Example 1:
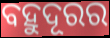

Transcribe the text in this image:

ବହୁଦୂରର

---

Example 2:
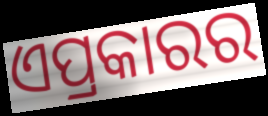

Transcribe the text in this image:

ଏପ୍ରକାରର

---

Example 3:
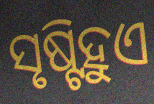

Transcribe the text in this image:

ସୃଷ୍ଟିହୁଏ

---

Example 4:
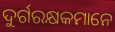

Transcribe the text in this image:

ଦୁର୍ଗରକ୍ଷକମାନେ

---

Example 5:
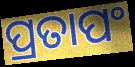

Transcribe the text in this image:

ପ୍ରତାପଂ